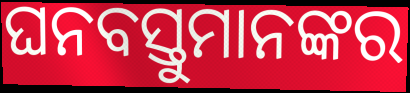
ଘନବସ୍ତୁମାନଙ୍କର